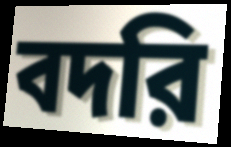
বদরি